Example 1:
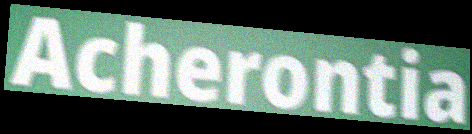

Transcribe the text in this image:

Acherontia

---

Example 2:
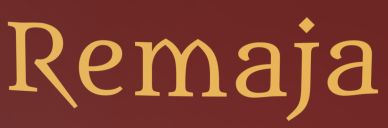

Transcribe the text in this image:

Remaja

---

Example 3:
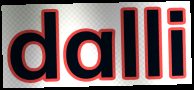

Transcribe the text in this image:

dalli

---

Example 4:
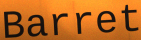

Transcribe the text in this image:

Barret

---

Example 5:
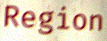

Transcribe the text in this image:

Region